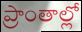
ప్రాంతాల్లో